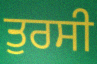
ਤੁਰਸੀ